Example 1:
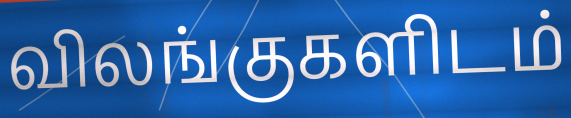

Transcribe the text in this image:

விலங்குகளிடம்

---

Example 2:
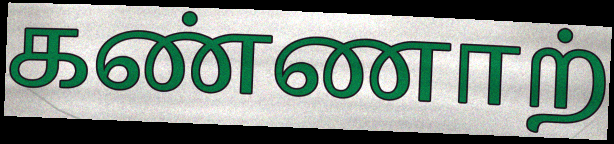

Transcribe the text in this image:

கண்ணாற்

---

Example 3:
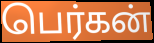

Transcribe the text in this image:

பெர்கன்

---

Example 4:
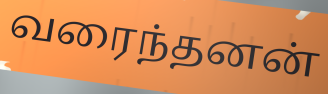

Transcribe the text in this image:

வரைந்தனன்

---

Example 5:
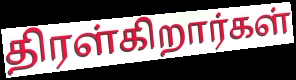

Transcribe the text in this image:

திரள்கிறார்கள்